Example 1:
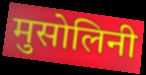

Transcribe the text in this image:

मुसोलिनी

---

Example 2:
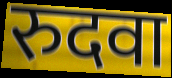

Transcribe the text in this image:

रुदवा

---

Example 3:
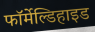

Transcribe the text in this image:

फॉर्मेल्डिहाइड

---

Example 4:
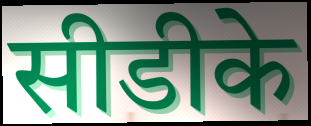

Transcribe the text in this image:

सीडीके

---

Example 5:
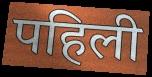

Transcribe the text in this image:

पहिली